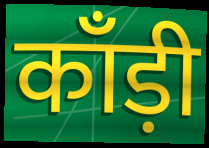
काँड़ी